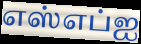
எஸ்எப்ஐ